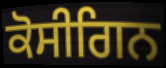
ਕੋਸੀਗਿਨ